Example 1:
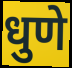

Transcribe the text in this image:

धुणे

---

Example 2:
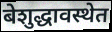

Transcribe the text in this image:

बेशुद्धावस्थेत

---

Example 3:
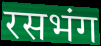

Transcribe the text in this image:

रसभंग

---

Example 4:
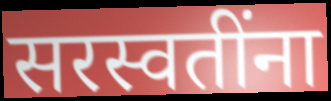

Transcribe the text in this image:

सरस्वतींना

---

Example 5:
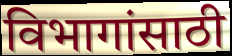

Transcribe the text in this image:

विभागांसाठी